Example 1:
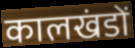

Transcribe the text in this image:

कालखंडों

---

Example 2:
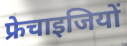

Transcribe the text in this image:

फ्रेचाइजियों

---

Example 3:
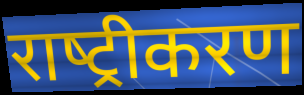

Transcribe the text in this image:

राष्ट्रीकरण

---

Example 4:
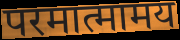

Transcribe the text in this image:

परमात्मामय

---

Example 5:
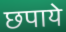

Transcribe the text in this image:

छपाये